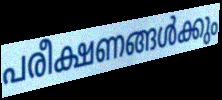
പരീക്ഷണങ്ങൾക്കും